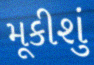
મૂકીશું